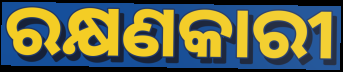
ରକ୍ଷଣକାରୀ